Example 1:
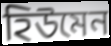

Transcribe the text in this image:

হিউমেন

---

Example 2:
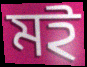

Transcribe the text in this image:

মই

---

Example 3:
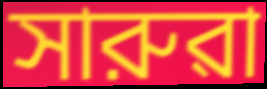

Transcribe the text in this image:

সাৰুৱা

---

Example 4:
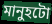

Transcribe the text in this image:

মানুহটো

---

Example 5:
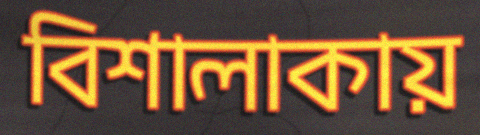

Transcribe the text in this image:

বিশালাকায়